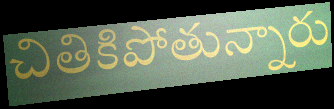
చితికిపోతున్నారు